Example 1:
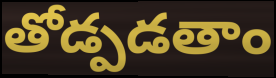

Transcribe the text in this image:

తోడ్పడతాం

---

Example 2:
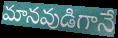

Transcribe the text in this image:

మానవుడిగానే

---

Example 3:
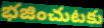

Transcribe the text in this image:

భజించుటకు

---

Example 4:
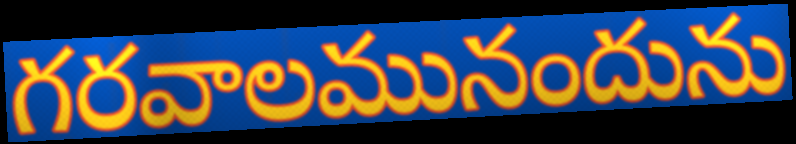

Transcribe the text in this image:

గరవాలమునందును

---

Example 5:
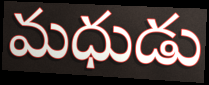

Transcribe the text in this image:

మధుడు